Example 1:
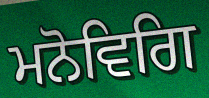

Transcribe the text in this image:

ਮਨੋਵਿਗਿ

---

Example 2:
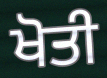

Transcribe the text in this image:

ਖੋਤੀ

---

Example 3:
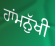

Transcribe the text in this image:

ਹਾਂਮਨੁੱਖੀ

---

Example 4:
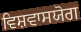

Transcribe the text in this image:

ਵਿਸ਼ਵਾਸਯੋਗ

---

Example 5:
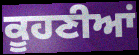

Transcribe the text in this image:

ਕੂਹਣੀਆਂ